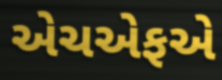
એચએફએ